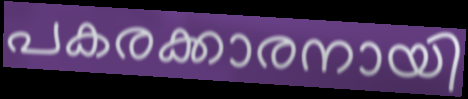
പകരക്കാരനായി